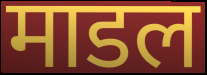
माडल